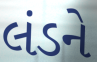
લંડને